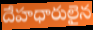
దేహధారులైన